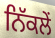
ਨਿੱਕਲੇਂ